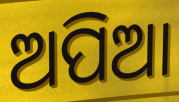
ଅପିଆ